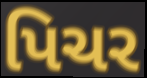
પિચર